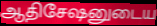
ஆதிசேஷனுடைய